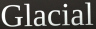
Glacial